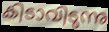
കിടാവിടുന്നു